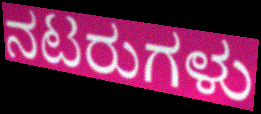
ನಟರುಗಳು